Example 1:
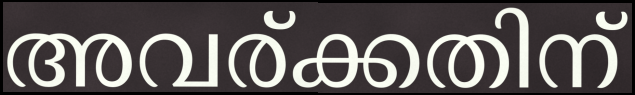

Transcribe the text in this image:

അവര്ക്കതിന്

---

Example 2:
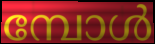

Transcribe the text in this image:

മ്പോൾ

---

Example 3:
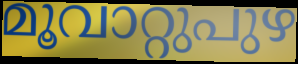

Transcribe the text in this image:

മൂവാറ്റുപുഴ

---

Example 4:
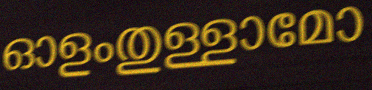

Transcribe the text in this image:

ഓളംതുള്ളാമോ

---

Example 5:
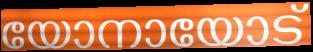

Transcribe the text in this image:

യോനായോട്